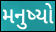
મનુષ્યો